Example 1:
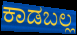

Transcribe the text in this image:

ಕಾಡಬಲ್ಲ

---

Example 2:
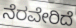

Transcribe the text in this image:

ನೆರವೇರಿದೆ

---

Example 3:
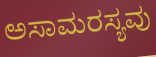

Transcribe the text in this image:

ಅಸಾಮರಸ್ಯವು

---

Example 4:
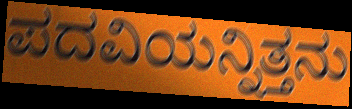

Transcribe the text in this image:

ಪದವಿಯನ್ನಿತ್ತನು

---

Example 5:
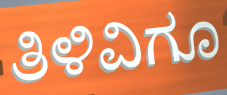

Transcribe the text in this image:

ತಿಳಿವಿಗೂ